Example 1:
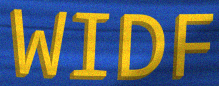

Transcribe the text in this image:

WIDF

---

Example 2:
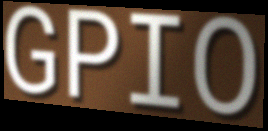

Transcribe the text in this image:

GPIO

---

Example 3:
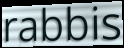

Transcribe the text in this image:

rabbis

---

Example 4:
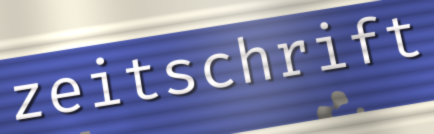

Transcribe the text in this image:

zeitschrift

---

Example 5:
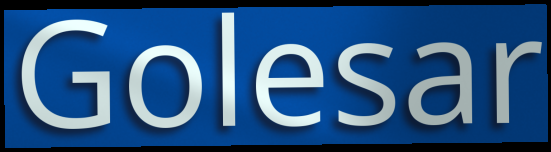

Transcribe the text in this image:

Golesar